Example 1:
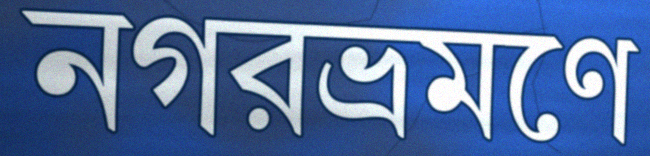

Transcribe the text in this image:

নগরভ্রমণে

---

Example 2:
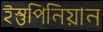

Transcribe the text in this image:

ইস্তুপিনিয়ান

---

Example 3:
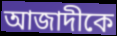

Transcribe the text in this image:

আজাদীকে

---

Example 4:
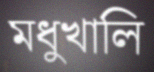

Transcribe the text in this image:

মধুখালি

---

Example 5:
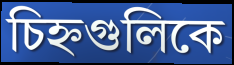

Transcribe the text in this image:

চিহ্নগুলিকে